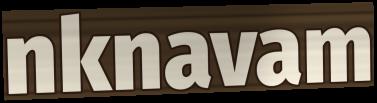
nknavam